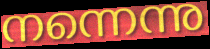
നന്നെന്നു